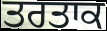
ਤਰਤਾਕ